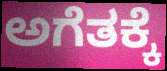
ಅಗೆತಕ್ಕೆ